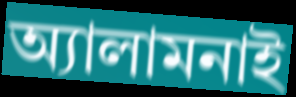
অ্যালামনাই